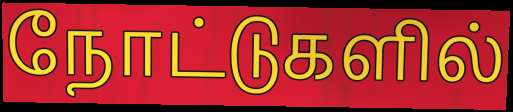
நோட்டுகளில்